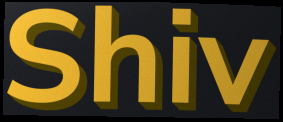
Shiv